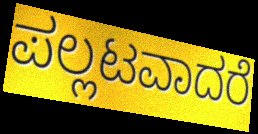
ಪಲ್ಲಟವಾದರೆ